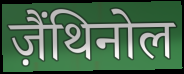
ज़ैंथिनोल